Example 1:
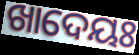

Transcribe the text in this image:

ଖାଦେୟଃ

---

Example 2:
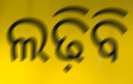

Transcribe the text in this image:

ଲଢ଼ିବି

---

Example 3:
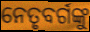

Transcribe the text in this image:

ନେତୃବର୍ଗଙ୍କୁ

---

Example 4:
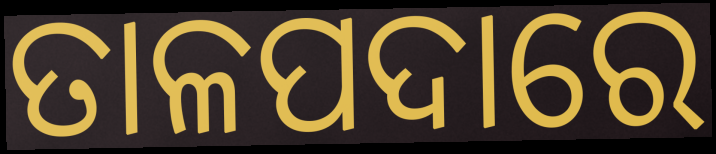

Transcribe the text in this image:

ତାଳପଦାରେ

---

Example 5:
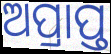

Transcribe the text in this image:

ଅପ୍ରାପ୍ତ